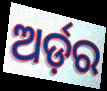
ଅର୍ଡ଼ର